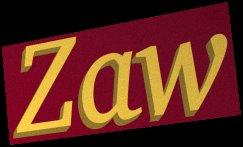
Zaw